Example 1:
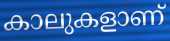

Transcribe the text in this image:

കാലുകളാണ്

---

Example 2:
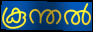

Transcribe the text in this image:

കൂന്തൽ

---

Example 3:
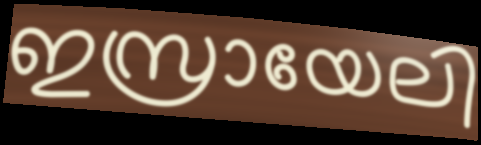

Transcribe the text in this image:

ഇസ്രായേലി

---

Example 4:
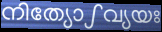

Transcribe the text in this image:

നിത്യോഽവ്യയഃ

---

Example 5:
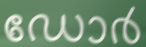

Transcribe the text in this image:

ഡോർ